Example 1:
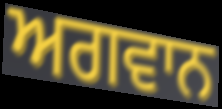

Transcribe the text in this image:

ਅਗਵਾਨ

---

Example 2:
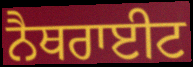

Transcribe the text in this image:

ਨੈਥਰਾਈਟ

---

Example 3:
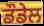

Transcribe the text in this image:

ਡੌਡੇਲ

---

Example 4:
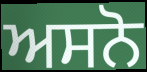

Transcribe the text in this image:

ਅਸਨੋ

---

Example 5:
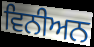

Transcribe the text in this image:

ਵਿਨੀਅਨ